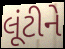
લૂંટીને